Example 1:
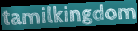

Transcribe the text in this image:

tamilkingdom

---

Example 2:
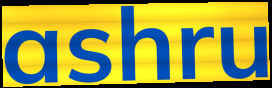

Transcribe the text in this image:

ashru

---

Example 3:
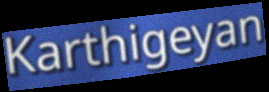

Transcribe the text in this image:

Karthigeyan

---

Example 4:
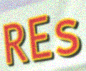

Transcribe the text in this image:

REs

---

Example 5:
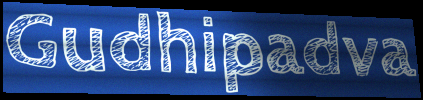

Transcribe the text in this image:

Gudhipadva